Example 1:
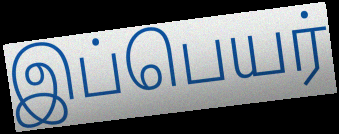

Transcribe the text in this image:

இப்பெயர்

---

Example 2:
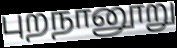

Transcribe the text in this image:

புறநானூறு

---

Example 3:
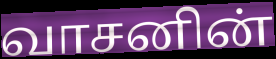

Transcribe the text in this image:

வாசனின்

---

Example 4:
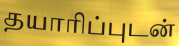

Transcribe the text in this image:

தயாரிப்புடன்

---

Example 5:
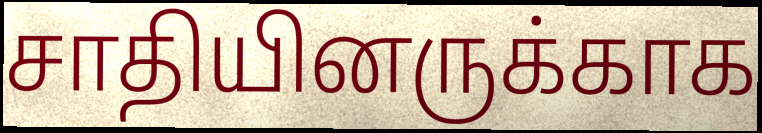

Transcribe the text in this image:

சாதியினருக்காக